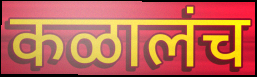
कळालंच